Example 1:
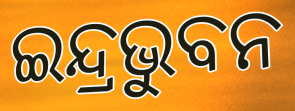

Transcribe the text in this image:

ଇନ୍ଦ୍ରଭୁବନ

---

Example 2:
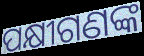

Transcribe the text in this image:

ପକ୍ଷୀଗଣଙ୍କ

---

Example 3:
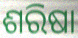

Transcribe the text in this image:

ଶରିଷା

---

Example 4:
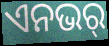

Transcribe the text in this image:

ଏନଭର୍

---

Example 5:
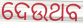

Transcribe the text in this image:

ଦେଉଥବ